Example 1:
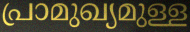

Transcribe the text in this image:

പ്രാമുഖ്യമുള്ള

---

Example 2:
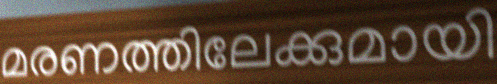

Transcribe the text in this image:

മരണത്തിലേക്കുമായി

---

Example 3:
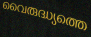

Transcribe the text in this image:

വൈരുദ്ധ്യത്തെ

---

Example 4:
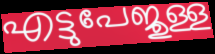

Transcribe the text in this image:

എട്ടുപേജുള്ള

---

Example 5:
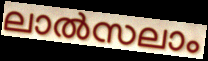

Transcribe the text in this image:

ലാൽസലാം